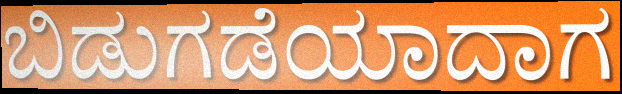
ಬಿಡುಗಡೆಯಾದಾಗ